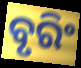
ବୃରିଂ